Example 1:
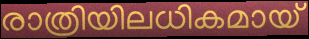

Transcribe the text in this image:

രാത്രിയിലധികമായ്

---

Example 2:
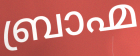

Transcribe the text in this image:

ബ്രാഹ്മ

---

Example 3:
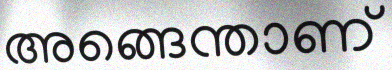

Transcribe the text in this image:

അങ്ങെന്താണ്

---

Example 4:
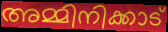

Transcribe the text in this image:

അമ്മിനിക്കാട്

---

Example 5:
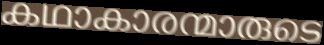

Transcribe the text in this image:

കഥാകാരന്മാരുടെ